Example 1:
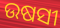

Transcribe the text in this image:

ଉଷସୀ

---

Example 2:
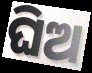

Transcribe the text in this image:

ଘିଅ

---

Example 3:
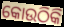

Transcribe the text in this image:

କୋଉଠିକି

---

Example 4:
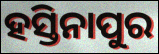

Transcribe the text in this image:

ହସ୍ତିନାପୁର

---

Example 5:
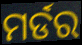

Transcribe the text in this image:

ମର୍ଡର